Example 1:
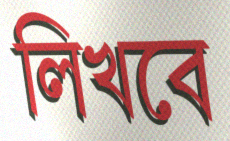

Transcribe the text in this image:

লিখবে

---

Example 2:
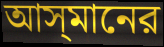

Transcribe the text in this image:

আস্‌মানের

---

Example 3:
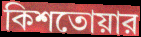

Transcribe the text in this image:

কিশতোয়ার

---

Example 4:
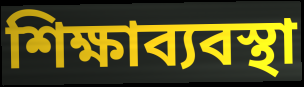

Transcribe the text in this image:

শিক্ষাব্যবস্থা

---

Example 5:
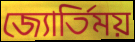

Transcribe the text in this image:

জ্যোর্তিময়